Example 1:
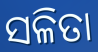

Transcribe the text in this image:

ସଳିତା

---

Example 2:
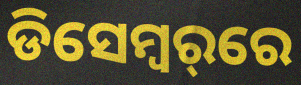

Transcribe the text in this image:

ଡିସେମ୍ବର୍‌ରେ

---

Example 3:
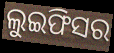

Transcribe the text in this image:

ଲୁଇଫିସର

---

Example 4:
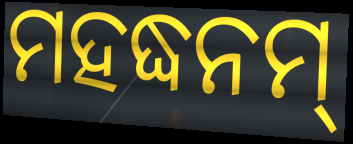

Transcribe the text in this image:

ମହଦ୍ଧନମ୍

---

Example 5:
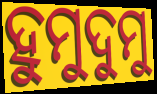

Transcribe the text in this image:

ହୁମୁଦୁମୁ